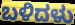
ಬಳಿದಳು